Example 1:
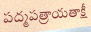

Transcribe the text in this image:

పద్మపత్రాయతాక్షీ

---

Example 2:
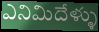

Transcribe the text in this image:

ఎనిమిదేళ్ళు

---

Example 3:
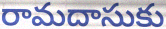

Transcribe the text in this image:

రామదాసుకు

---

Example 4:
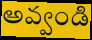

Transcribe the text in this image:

అవ్వండి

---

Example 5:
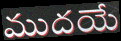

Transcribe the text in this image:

ముదయే